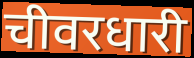
चीवरधारी